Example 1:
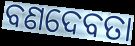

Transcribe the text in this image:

ବଣଦେବତା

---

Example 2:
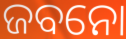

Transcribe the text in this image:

ଜବନୋ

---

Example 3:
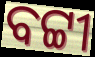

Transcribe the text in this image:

ବଟ୍ଟୀ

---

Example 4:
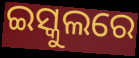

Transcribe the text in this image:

ଇସ୍କୁଲରେ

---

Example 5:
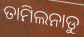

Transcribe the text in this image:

ତାମିଲନାଡୁ